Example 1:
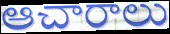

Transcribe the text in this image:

ఆచారాలు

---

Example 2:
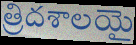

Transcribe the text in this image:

త్రిదశాలయై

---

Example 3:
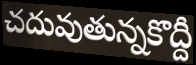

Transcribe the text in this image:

చదువుతున్నకొద్దీ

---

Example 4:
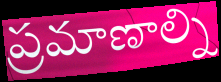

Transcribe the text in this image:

ప్రమాణాల్ని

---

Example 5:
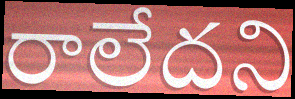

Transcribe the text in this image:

రాలేదని